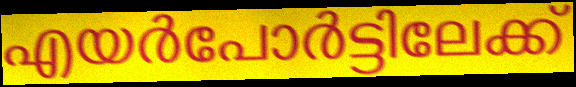
എയർപോർട്ടിലേക്ക്